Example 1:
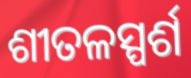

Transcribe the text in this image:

ଶୀତଳସ୍ପର୍ଶ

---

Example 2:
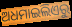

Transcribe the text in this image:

ଅଧମାଇଲିଏରୁ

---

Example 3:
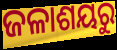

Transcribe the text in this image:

ଜଳାଶୟରୁ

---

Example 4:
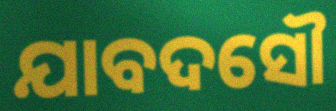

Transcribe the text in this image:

ଯାବଦସୌ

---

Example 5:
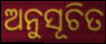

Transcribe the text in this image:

ଅନୁସୂଚିତ